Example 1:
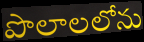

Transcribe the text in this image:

పొలాలలోను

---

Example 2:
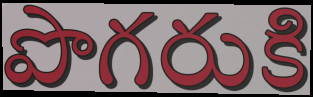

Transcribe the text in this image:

పొగరుకి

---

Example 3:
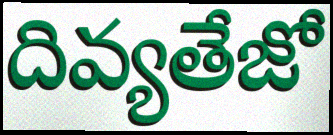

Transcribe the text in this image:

దివ్యతేజో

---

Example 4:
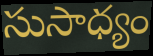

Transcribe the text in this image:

సుసాధ్యం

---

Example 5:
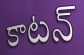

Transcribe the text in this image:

కాటన్